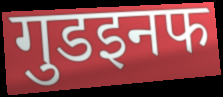
गुडइनफ